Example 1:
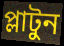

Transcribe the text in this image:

প্লাটুন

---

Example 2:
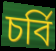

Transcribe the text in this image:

চর্বি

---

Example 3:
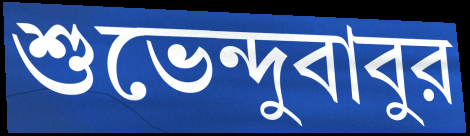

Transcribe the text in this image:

শুভেন্দুবাবুর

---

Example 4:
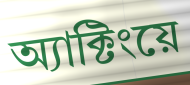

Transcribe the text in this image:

অ্যাক্টিংয়ে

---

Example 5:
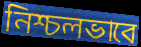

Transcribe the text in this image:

নিশ্চলভাবে